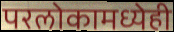
परलोकामध्येही